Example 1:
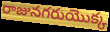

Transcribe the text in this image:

రాజునగరుయొక్క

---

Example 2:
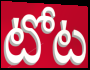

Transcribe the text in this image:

టోట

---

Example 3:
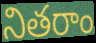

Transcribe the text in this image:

నితరాం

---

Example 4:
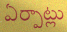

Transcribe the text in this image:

ఏర్పాట్లు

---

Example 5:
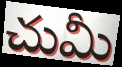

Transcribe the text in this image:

చుమీ